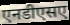
एनडीएसए